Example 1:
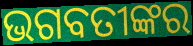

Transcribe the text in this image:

ଭଗବତୀଙ୍କର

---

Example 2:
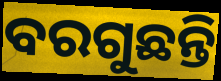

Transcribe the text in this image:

ବରଗୁଛନ୍ତି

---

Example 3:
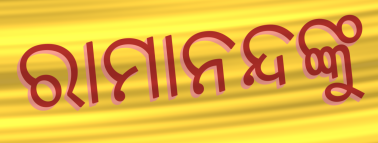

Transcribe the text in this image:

ରାମାନନ୍ଦଙ୍କୁ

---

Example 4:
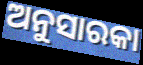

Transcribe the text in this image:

ଅନୁସାରକା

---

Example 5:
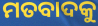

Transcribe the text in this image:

ମତବାଦକୁ